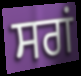
ਸਗਂ